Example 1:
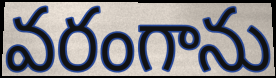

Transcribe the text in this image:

వరంగాను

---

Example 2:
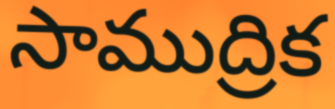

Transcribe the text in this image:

సాముద్రిక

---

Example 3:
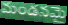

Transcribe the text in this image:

మండనమై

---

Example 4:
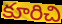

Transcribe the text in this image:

కూరిచి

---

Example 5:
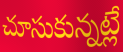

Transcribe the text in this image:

చూసుకున్నట్లే